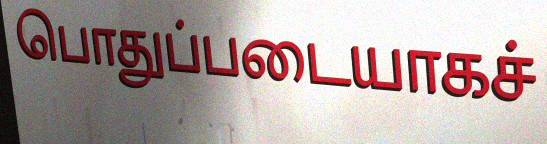
பொதுப்படையாகச்